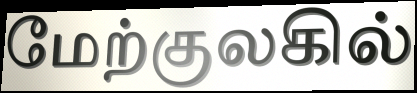
மேற்குலகில்